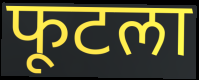
फूटला